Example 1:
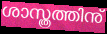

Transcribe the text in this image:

ശാസ്ത്രത്തിനു്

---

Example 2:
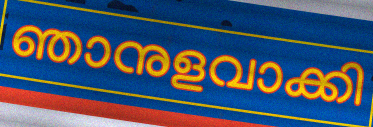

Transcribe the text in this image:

ഞാനുളവാക്കി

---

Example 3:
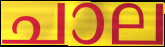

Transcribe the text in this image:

ചാല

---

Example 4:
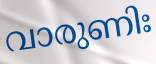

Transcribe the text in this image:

വാരുണിഃ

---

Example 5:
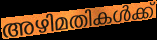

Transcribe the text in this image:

അഴിമതികൾക്ക്